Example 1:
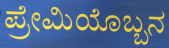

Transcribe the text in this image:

ಪ್ರೇಮಿಯೊಬ್ಬನ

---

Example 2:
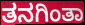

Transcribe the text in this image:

ತನಗಿಂತಾ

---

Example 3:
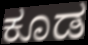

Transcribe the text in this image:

ಕೂಡ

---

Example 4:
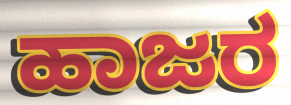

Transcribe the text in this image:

ಹಾಜರ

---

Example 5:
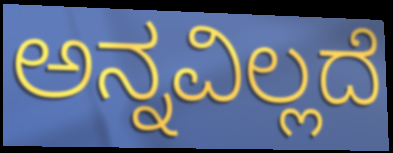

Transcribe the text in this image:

ಅನ್ನವಿಲ್ಲದೆ